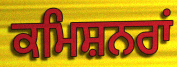
ਕਮਿਸ਼ਨਰਾਂ